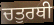
ਚਤੁਰਥੀ